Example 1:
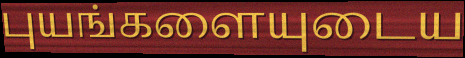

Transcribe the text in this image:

புயங்களையுடைய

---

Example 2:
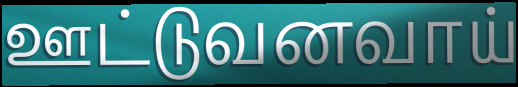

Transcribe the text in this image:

ஊட்டுவனவாய்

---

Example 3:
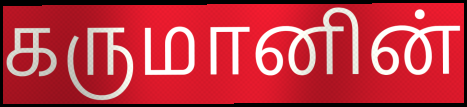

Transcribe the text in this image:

கருமானின்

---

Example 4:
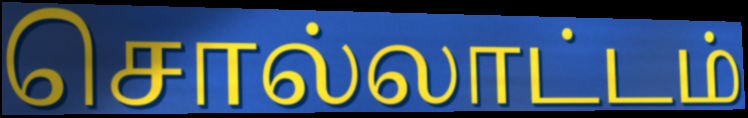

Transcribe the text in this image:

சொல்லாட்டம்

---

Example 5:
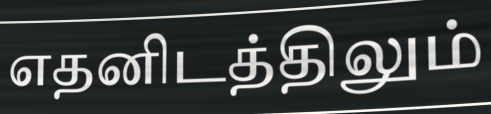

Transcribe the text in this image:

எதனிடத்திலும்